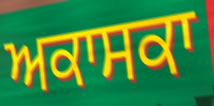
ਅਕਾਸਕਾ